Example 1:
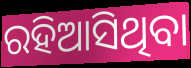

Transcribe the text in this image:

ରହିଆସିଥିବା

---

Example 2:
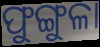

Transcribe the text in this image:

ଫୁଙ୍ଗୁଳା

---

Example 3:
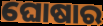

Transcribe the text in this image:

ଘୋଷାର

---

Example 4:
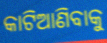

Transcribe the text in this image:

କାଟିଆଣିବାକୁ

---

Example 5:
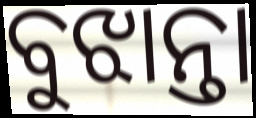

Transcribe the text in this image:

ବୁଝାନ୍ତା